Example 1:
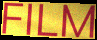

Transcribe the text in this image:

FILM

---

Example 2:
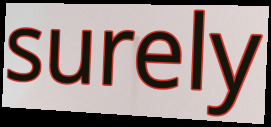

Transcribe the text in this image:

surely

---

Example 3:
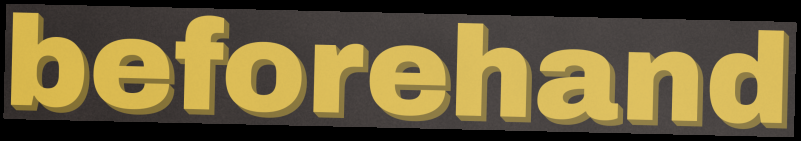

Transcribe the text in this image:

beforehand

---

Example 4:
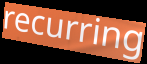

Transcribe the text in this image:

recurring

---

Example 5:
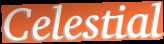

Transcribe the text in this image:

Celestial